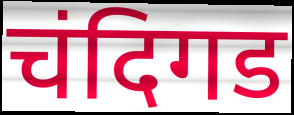
चंदिगड